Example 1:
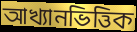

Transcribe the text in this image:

আখ্যানভিত্তিক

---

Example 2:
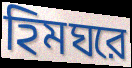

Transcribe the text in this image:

হিমঘরে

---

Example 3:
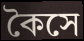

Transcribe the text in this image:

কৈসে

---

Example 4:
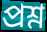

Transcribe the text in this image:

প্রশ্ন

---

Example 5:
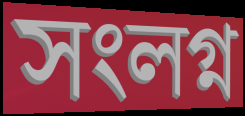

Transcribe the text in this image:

সংলগ্ন